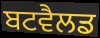
ਬਟਵੈਲਡ